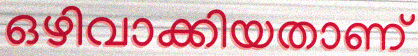
ഒഴിവാക്കിയതാണ്